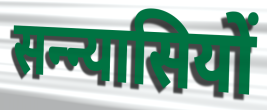
सन्न्यासियों